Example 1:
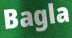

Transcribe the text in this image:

Bagla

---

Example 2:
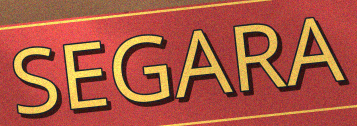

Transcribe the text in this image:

SEGARA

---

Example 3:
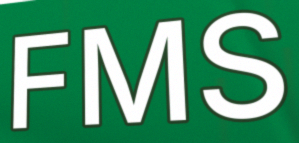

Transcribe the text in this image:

FMS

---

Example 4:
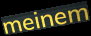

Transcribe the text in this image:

meinem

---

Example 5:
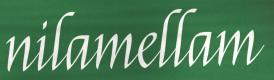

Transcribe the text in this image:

nilamellam